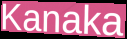
Kanaka